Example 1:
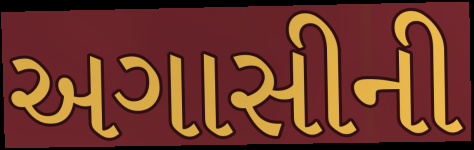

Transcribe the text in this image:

અગાસીની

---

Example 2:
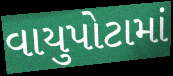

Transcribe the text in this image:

વાયુપોટામાં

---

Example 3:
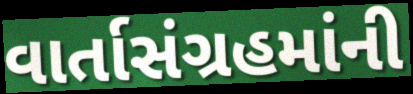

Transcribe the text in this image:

વાર્તાસંગ્રહમાંની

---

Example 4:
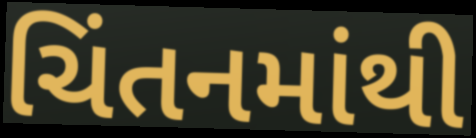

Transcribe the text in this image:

ચિંતનમાંથી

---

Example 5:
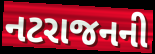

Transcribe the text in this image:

નટરાજનની